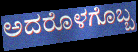
ಅದರೊಳಗೊಬ್ಬ